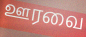
ஊரவை